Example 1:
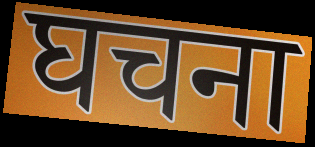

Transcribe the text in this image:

घचना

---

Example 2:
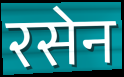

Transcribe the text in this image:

रसेन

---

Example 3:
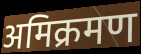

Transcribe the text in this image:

अमिक्रमण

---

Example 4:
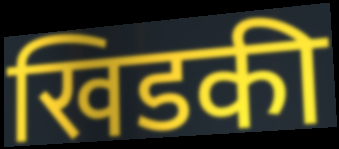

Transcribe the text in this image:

खिडकी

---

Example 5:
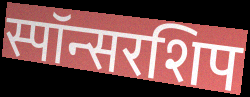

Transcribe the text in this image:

स्पॉन्सरशिप